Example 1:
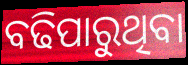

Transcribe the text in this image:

ବଢିପାରୁଥିବା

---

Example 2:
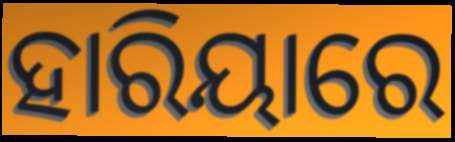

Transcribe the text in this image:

ହାରିୟାରେ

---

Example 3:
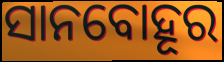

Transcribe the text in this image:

ସାନବୋହୂର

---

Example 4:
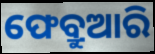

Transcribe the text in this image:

ଫେବ୍ରୁଆରି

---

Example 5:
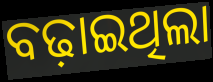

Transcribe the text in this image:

ବଢ଼ାଇଥିଲା